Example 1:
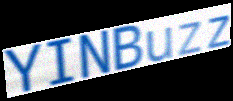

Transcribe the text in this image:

YINBuzz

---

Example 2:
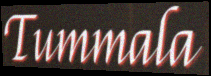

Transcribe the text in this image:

Tummala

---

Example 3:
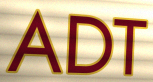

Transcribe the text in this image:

ADT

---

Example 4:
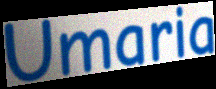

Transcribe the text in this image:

Umaria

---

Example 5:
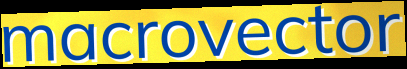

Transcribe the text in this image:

macrovector